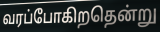
வரப்போகிறதென்று